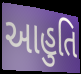
આહુતિ